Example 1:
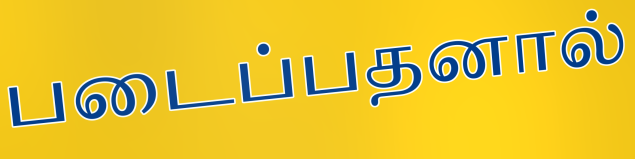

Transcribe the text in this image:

படைப்பதனால்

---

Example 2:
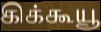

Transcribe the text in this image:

கிக்கூயூ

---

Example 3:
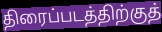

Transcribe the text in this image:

திரைப்படத்திற்குத்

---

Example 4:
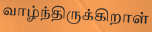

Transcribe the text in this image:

வாழ்ந்திருக்கிறாள்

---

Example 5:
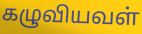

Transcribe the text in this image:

கழுவியவள்